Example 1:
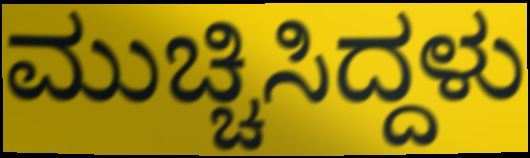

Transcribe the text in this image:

ಮುಚ್ಚಿಸಿದ್ದಳು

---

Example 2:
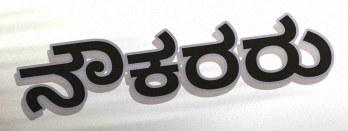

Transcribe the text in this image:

ನೌಕರರು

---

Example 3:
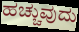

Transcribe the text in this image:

ಹಚ್ಚುವುದು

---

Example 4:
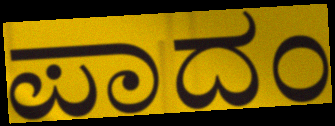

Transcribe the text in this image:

ಪಾದಂ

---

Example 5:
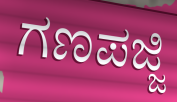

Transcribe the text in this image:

ಗಣಪಜ್ಜಿ